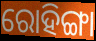
ରୋହିଙ୍ଗା